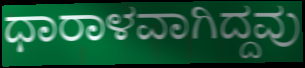
ಧಾರಾಳವಾಗಿದ್ದವು